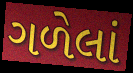
ગળેલાં